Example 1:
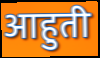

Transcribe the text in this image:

आहुती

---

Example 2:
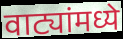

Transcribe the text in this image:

वाट्यांमध्ये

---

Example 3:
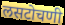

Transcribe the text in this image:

लसटोचणी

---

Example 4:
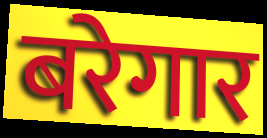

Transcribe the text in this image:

बरेगार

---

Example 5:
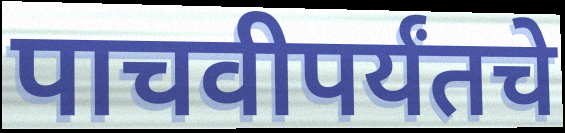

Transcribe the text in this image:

पाचवीपर्यंतचे